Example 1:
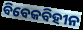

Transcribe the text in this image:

ବିବେକବିହୀନ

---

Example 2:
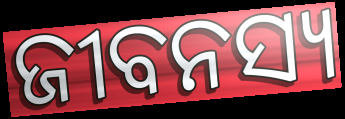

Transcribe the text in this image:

ଜୀବନସ୍ୟ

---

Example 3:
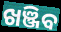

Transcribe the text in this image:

ଖଞ୍ଜିବ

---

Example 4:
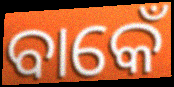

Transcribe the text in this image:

ବାକେଁ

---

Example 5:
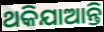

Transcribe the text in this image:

ଥକିଯାଆନ୍ତି